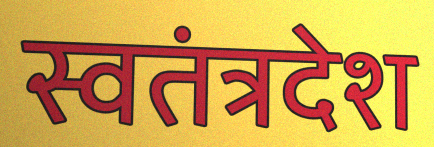
स्वतंत्रदेश